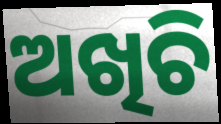
ଅଖିଚି